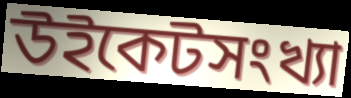
উইকেটসংখ্যা